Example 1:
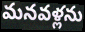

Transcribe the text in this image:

మనవళ్లను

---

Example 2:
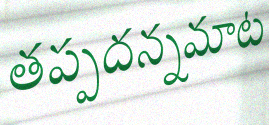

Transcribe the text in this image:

తప్పదన్నమాట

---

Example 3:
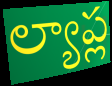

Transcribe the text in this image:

ల్యాప్ల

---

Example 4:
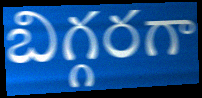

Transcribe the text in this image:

బిగ్గరగా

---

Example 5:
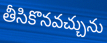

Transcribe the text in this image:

తీసికొనవచ్చును